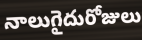
నాలుగైదురోజులు